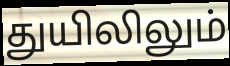
துயிலிலும்